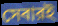
সেবারই